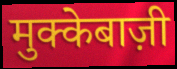
मुक्केबाज़ी